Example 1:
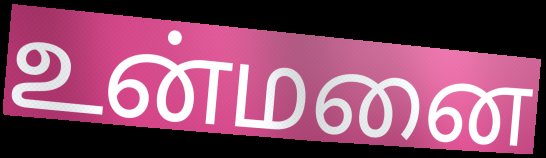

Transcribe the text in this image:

உன்மனை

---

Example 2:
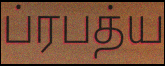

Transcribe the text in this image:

ப்ரபத்ய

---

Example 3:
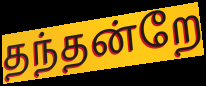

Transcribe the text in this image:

தந்தன்றே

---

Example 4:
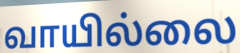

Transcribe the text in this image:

வாயில்லை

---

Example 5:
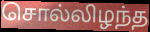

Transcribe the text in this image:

சொல்லிழந்த